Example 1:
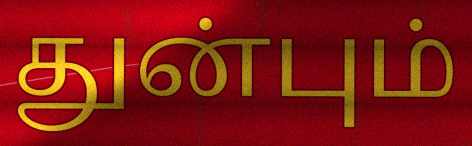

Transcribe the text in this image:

துன்பும்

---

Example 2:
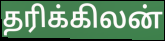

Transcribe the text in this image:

தரிக்கிலன்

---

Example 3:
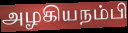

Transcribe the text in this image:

அழகியநம்பி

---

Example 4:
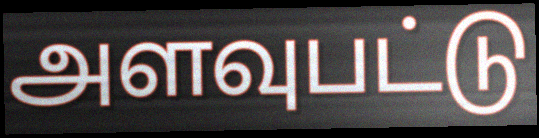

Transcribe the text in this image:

அளவுபட்டு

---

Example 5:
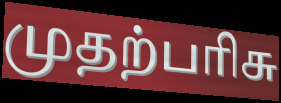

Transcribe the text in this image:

முதற்பரிசு